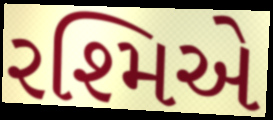
રશ્મિએ